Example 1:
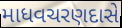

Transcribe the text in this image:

માધવચરણદાસે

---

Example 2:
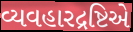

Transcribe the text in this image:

વ્યવહારદ્રષ્ટિએ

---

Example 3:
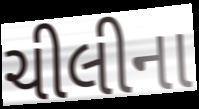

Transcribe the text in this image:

ચીલીના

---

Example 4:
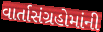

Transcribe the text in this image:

વાર્તાસંગ્રહોમાંની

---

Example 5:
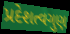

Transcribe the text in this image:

પ્રદેશત્વગુણ